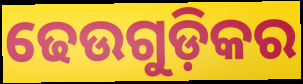
ଢେଉଗୁଡ଼ିକର